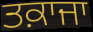
ਤਕ਼ਾਜਾ